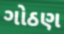
ગોઠણ